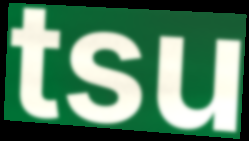
tsu